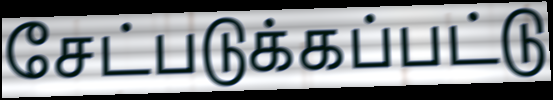
சேட்படுக்கப்பட்டு